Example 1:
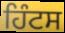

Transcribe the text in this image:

ਹਿੰਟਸ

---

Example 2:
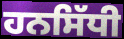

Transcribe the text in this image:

ਹਨਸਿੱਧੀ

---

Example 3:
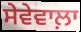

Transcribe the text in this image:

ਸੇਵੇਵਾਲ਼ਾ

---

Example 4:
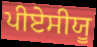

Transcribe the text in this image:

ਪੀਏਸੀਯੂ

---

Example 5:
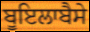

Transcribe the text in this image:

ਬੂਇਲਾਬੈਸੇ